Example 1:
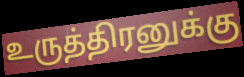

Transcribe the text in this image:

உருத்திரனுக்கு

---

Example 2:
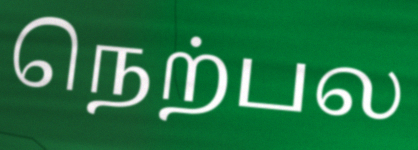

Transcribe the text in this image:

நெற்பல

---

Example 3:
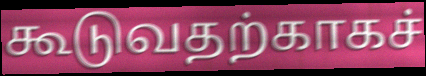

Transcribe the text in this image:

கூடுவதற்காகச்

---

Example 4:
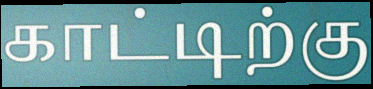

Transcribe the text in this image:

காட்டிற்கு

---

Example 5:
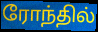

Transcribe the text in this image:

ரோந்தில்